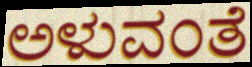
ಅಳುವಂತೆ